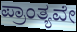
ಪ್ರಾಂತ್ಯವೇ